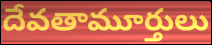
దేవతామూర్తులు